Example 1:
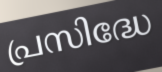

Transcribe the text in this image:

പ്രസിദ്ധേ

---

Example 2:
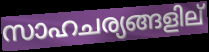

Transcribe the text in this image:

സാഹചര്യങ്ങളില്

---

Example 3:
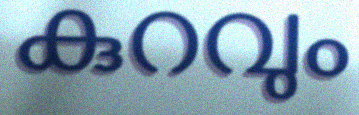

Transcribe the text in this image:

കുറവും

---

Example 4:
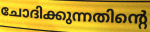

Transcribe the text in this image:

ചോദിക്കുന്നതിന്റെ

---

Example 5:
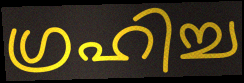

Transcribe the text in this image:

ഗ്രഹിച്ച